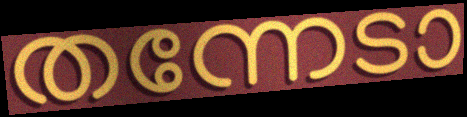
തന്നേടാ